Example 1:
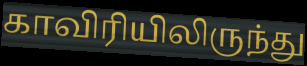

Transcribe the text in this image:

காவிரியிலிருந்து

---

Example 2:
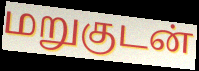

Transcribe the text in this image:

மறுகுடன்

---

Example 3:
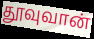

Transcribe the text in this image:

தூவுவான்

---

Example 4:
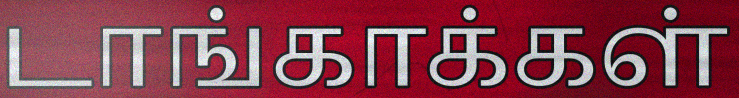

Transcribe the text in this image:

டாங்காக்கள்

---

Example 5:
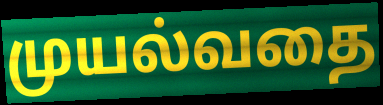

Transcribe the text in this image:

முயல்வதை